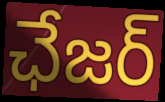
ఛేజర్